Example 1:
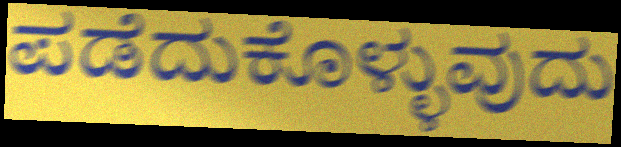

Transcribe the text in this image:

ಪಡೆದುಕೊಳ್ಳುವುದು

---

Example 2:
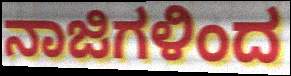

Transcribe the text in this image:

ನಾಜಿಗಳಿಂದ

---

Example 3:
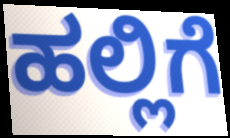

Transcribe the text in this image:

ಹಲ್ಲಿಗೆ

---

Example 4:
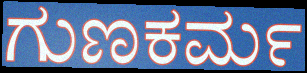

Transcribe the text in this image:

ಗುಣಕರ್ಮ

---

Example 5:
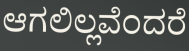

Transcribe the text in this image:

ಆಗಲಿಲ್ಲವೆಂದರೆ